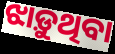
ଝାଡ଼ୁଥିବା